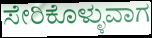
ಸೇರಿಕೊಳ್ಳುವಾಗ